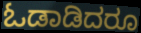
ಓಡಾಡಿದರೂ